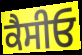
ਕੈਸੀਓ